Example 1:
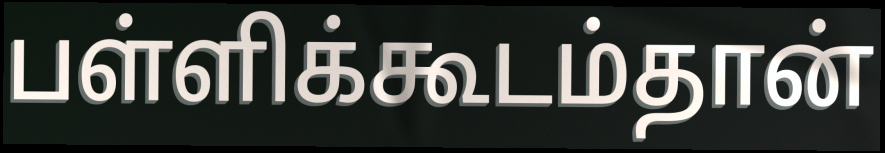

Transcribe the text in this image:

பள்ளிக்கூடம்தான்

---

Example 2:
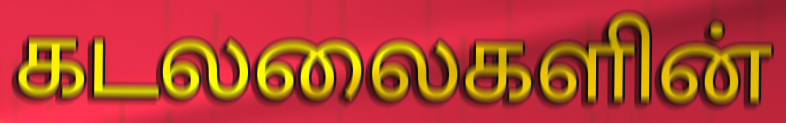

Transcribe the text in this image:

கடலலைகளின்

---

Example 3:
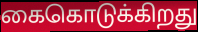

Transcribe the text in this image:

கைகொடுக்கிறது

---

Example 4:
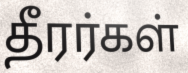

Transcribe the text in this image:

தீரர்கள்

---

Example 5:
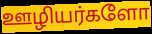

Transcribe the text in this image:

ஊழியர்களோ